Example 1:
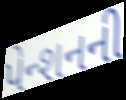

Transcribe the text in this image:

પેન્શનની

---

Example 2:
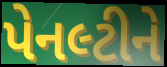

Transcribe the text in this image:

પેનલ્ટીને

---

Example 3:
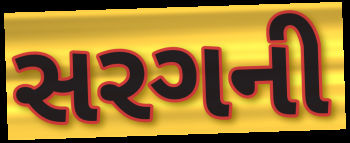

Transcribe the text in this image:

સરગની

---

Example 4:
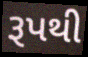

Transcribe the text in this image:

રૂપથી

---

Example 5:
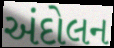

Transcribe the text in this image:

અંદોલન